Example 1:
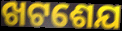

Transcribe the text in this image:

ଖଟଶେଯ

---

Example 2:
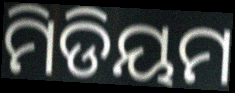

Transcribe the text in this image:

ମିଡିୟମ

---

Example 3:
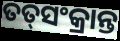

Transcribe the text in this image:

ତତ୍‌ସଂକ୍ରାନ୍ତ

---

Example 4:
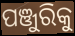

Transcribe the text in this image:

ପଞ୍ଜୁରିକୁ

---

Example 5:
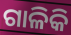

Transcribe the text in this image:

ଗାଳିକି